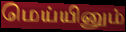
மெய்யினும்